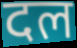
दल